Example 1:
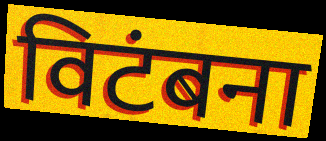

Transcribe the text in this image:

विटंबना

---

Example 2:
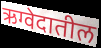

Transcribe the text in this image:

ऋग्वेदातील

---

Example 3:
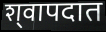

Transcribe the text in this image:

श्वापदात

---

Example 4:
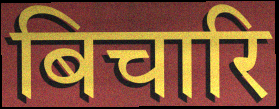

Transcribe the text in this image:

बिचारि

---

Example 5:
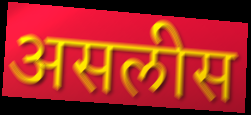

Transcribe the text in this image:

असलीस